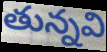
తున్నవి